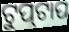
ଟୁପ୍‌ଟାପ